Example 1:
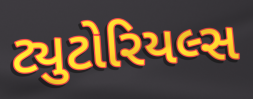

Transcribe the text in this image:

ટ્યુટોરિયલ્સ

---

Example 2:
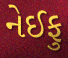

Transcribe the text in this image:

નેઈફુ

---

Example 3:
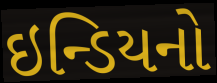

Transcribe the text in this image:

ઇન્ડિયનો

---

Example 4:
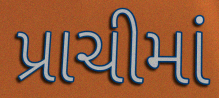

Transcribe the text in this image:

પ્રાચીમાં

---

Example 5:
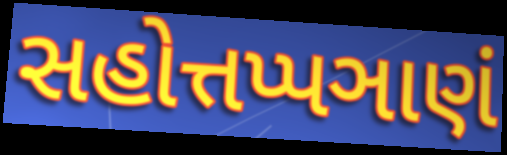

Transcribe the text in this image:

સહોત્તપ્પઞાણં